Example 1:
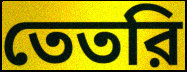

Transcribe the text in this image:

তেতরি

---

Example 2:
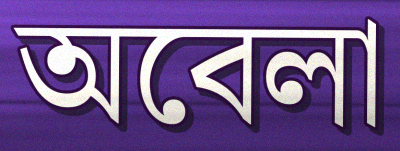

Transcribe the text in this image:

অবেলা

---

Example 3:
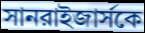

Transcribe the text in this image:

সানরাইজার্সকে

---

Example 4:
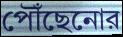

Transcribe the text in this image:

পৌঁছেনোর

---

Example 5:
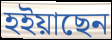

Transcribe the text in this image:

হইয়াছেন